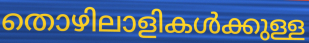
തൊഴിലാളികൾക്കുള്ള